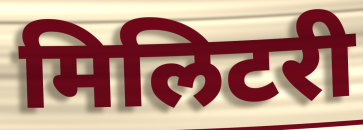
मिलिटरी